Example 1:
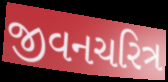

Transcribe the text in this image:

જીવનચરિત્ર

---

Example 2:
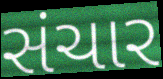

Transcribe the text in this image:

સંચાર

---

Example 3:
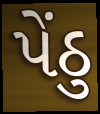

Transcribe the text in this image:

પેંઠુ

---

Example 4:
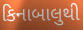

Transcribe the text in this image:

કિનાબાલુથી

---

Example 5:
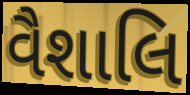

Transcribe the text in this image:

વૈશાલિ